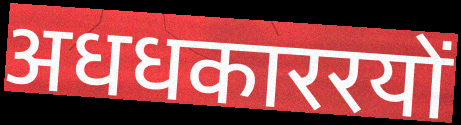
अधधकाररयों